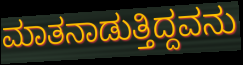
ಮಾತನಾಡುತ್ತಿದ್ದವನು